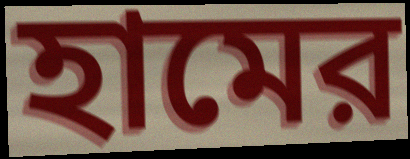
হামের